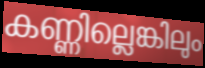
കണ്ണില്ലെങ്കിലും